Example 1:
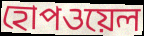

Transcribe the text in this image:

হোপওয়েল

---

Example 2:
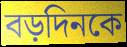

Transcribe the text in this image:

বড়দিনকে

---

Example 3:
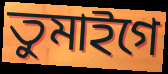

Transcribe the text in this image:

তুমাইগে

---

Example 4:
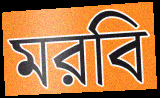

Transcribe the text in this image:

মরবি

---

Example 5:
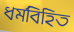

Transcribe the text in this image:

ধর্মবিহিত